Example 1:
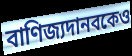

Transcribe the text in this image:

বাণিজ্যদানবকেও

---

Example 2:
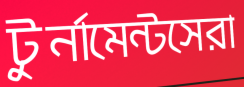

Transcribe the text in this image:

টুর্নামেন্টসেরা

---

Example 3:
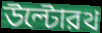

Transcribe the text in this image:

উল্টোরথ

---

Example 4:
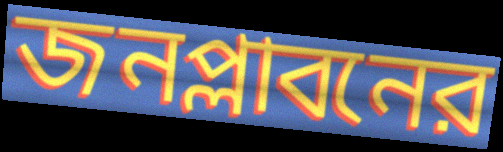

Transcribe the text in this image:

জনপ্লাবনের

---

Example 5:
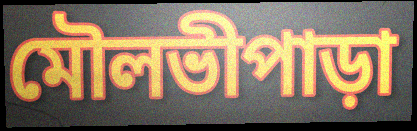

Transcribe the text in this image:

মৌলভীপাড়া